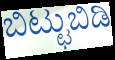
ಬಿಟ್ಟುಬಿಡಿ